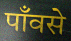
पाँवसे